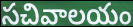
సచివాలయం